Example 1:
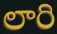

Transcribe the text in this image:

లారి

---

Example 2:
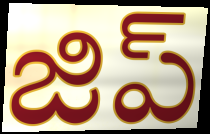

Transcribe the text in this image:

జిప్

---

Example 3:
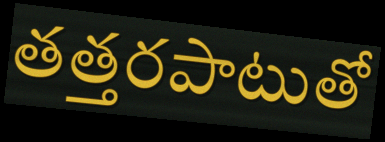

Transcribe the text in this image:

తత్తరపాటుతో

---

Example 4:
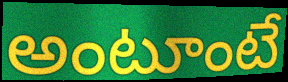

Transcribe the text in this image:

అంటూంటే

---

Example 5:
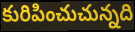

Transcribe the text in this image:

కురిపించుచున్నది